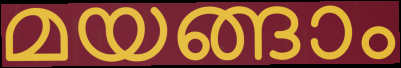
മയങ്ങാം